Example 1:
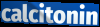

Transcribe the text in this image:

calcitonin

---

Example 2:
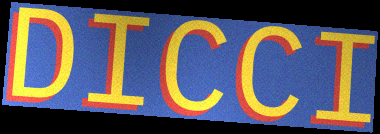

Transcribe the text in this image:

DICCI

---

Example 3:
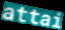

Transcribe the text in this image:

attai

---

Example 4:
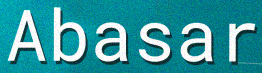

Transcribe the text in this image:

Abasar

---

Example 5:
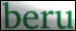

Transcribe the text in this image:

beru